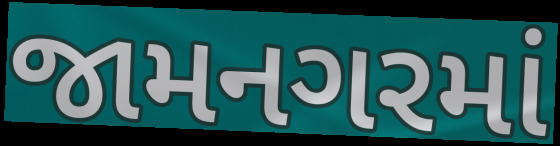
જામનગરમાં